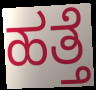
ಹತ್ತೆ